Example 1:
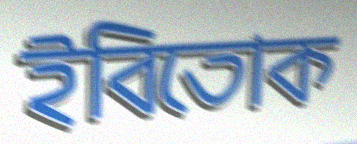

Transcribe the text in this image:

ইবিতোক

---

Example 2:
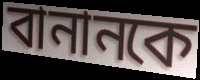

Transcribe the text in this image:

বানানকে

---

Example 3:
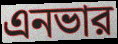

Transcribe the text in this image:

এনভার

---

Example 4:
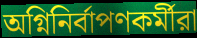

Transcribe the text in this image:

অগ্নিনির্বাপণকর্মীরা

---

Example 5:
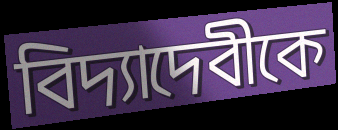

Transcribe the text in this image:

বিদ্যাদেবীকে